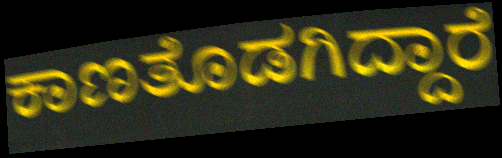
ಕಾಣತೊಡಗಿದ್ದಾರೆ